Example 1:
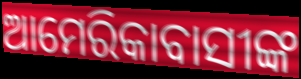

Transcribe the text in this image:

ଆମେରିକାବାସୀଙ୍କ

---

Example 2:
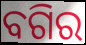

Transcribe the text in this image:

ବଗିର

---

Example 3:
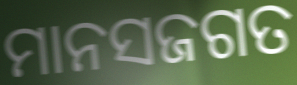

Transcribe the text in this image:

ମାନସଜଗତ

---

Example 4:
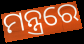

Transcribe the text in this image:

ମନ୍ତ୍ରରେ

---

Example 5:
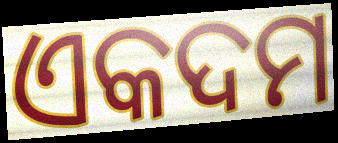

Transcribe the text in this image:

ଏକଦମ